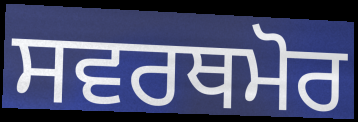
ਸਵਰਥਮੋਰ